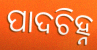
ପାଦଚିହ୍ନ